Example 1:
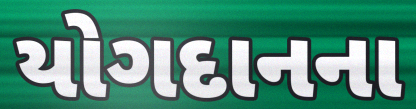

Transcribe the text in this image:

યોગદાનના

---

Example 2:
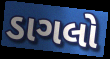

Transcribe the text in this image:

ડાગલો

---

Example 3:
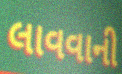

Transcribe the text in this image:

લાવવાની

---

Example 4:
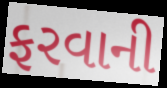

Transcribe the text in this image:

ફરવાની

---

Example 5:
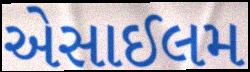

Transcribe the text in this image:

એસાઈલમ